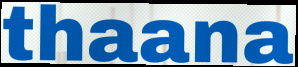
thaana